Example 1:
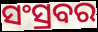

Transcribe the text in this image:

ସଂସ୍ରବର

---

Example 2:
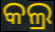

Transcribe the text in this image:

କଲ୍ର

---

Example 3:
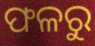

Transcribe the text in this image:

ଫଳରୁ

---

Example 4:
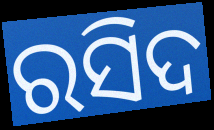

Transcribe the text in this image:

ରସିଦ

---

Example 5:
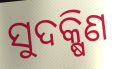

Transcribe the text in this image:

ସୁଦକ୍ଷିଣ